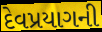
દેવપ્રયાગની